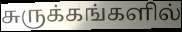
சுருக்கங்களில்